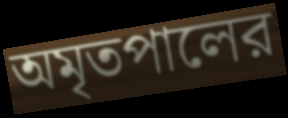
অমৃতপালের